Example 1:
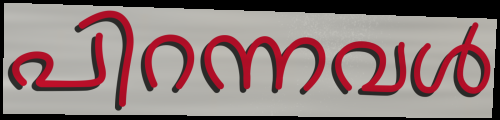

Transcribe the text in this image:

പിറന്നവൾ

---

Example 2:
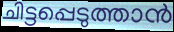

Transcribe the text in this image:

ചിട്ടപ്പെടുത്താൻ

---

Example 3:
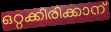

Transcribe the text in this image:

ഒറ്റക്കിരിക്കാന്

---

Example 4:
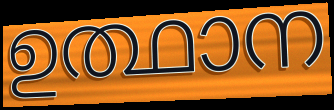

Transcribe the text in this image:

ഉത്ഥാന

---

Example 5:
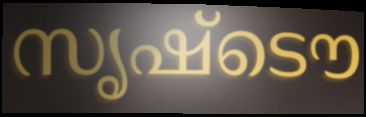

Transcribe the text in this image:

സൃഷ്ടൌ